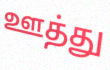
ஊத்து